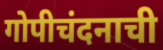
गोपीचंदनाची